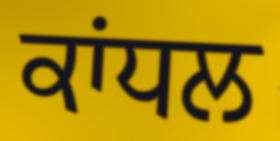
ਕਾਂਧਲ